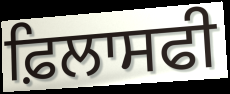
ਫ਼ਿਲਾਸਫੀ